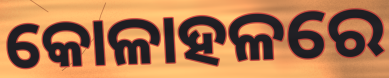
କୋଳାହଳରେ